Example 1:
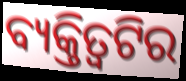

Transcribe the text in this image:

ବ୍ୟକ୍ତିତ୍ୱଟିର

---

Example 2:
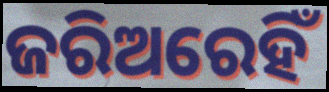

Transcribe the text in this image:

ଜରିଅରେହିଁ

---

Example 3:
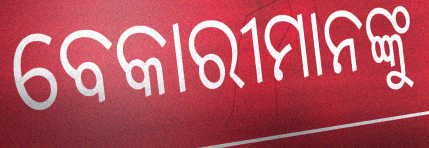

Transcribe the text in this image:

ବେକାରୀମାନଙ୍କୁ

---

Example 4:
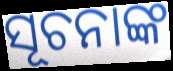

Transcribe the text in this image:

ସୂଚନାଙ୍କ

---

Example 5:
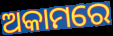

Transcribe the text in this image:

ଅକାମରେ